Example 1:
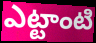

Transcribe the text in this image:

ఎట్టాంటి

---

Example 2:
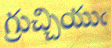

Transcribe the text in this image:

గ్రుచ్చియుఁ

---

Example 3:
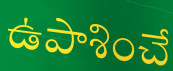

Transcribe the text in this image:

ఉపాశించే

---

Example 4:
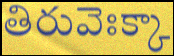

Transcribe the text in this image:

తిరువెఃక్కా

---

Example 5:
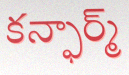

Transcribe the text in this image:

కన్ఫార్మ్